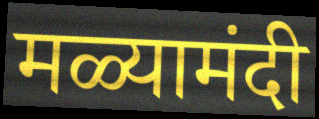
मळ्यामंदी